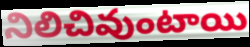
నిలిచివుంటాయి